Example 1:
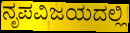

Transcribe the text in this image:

ನೃಪವಿಜಯದಲ್ಲಿ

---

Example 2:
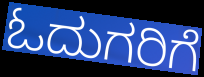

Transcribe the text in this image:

ಓದುಗರಿಗೆ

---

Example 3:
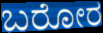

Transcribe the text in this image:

ಬರೋರ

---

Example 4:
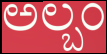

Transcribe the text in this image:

ಅಲ್ಬಂ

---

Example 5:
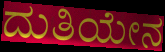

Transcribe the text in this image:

ದುತಿಯೇನ